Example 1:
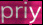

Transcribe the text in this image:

priy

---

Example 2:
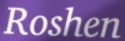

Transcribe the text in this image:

Roshen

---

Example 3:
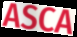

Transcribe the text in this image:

ASCA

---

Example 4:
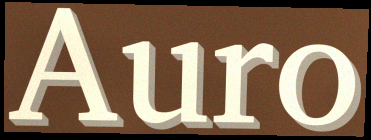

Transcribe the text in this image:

Auro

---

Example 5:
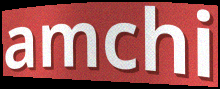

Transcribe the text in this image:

amchi